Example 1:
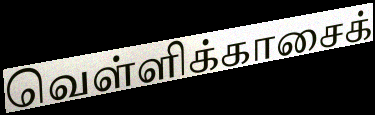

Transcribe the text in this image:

வெள்ளிக்காசைக்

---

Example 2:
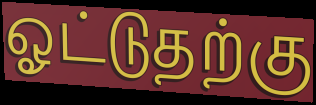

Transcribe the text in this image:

ஓட்டுதற்கு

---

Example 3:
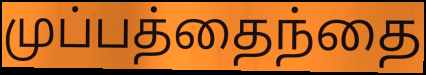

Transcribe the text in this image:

முப்பத்தைந்தை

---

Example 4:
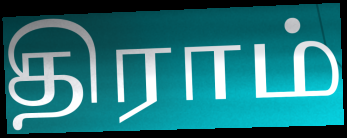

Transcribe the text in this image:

திராம்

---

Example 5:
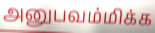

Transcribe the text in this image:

அனுபவம்மிக்க